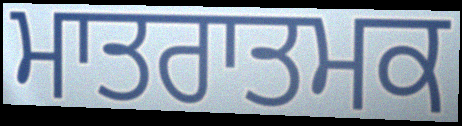
ਮਾਤਰਾਤਮਕ